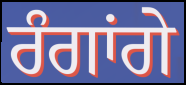
ਰੰਗਾਂਗੇ